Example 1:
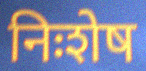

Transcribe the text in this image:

निःशेष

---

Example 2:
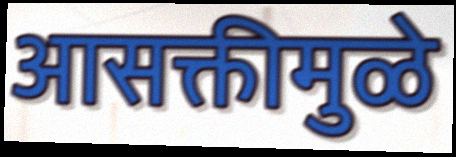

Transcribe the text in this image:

आसक्तीमुळे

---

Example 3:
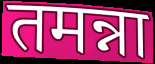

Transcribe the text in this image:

तमन्ना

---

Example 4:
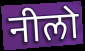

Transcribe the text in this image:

नीलो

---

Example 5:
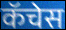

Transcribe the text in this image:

कॅचेस